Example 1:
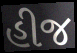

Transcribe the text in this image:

હીજ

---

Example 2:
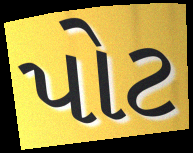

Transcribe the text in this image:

પોટ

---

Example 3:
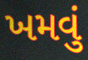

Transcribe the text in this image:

ખમવું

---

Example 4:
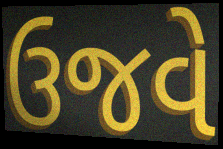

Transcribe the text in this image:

ઉજવે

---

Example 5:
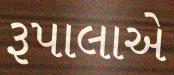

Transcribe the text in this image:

રૂપાલાએ